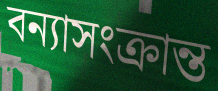
বন্যাসংক্রান্ত